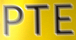
PTE